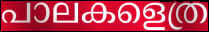
പാലകളെത്ര